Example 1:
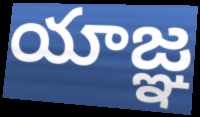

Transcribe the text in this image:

యాజ్ఞ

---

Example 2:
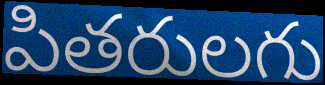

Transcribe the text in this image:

పితరులగు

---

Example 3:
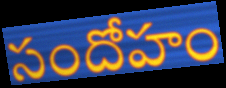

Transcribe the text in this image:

సందోహం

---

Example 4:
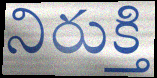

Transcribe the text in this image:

నిరుక్తి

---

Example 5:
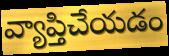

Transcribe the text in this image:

వ్యాప్తిచేయడం